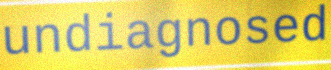
undiagnosed